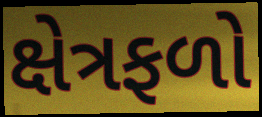
ક્ષેત્રફળો